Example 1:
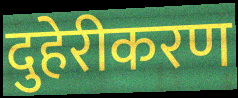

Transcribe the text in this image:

दुहेरीकरण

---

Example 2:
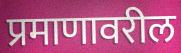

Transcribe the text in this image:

प्रमाणावरील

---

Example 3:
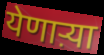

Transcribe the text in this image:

येणाऱ्‍या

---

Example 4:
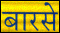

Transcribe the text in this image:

बारसे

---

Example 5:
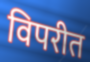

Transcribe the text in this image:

विपरीत